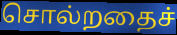
சொல்றதைச்